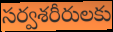
సర్వశరీరులకు